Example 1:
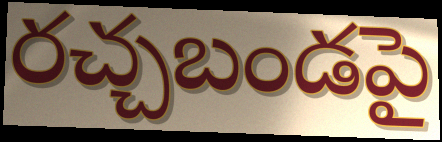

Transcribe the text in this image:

రచ్చబండపై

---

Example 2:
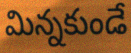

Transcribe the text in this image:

మిన్నకుండే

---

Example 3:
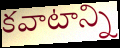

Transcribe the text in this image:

కవాటాన్ని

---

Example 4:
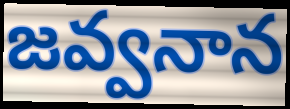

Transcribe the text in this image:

జవ్వనాన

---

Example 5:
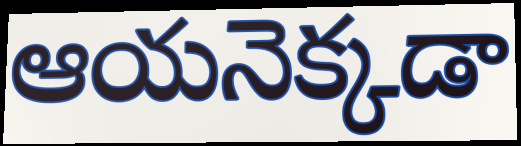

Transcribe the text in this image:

ఆయనెక్కడా